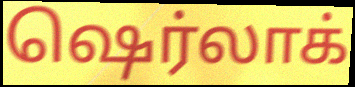
ஷெர்லாக்